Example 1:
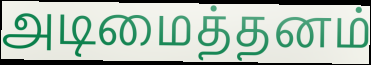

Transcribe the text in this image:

அடிமைத்தனம்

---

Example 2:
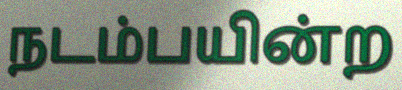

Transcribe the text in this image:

நடம்பயின்ற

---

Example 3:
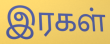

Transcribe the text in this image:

இரகள்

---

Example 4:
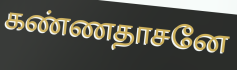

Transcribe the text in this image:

கண்ணதாசனே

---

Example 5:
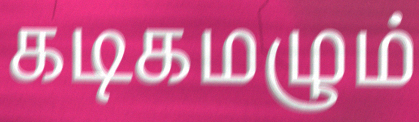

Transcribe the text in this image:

கடிகமழும்